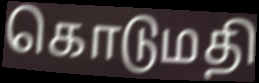
கொடுமதி